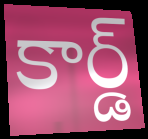
కార్డ్